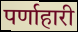
पर्णाहारी